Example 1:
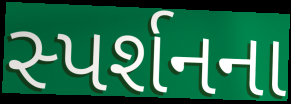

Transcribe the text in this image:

સ્પર્શનના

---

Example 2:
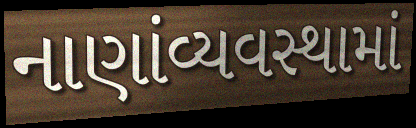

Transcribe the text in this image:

નાણાંવ્યવસ્થામાં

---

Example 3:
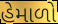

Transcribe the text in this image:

હેમાળો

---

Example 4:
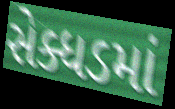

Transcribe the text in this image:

સેક્ધડમાં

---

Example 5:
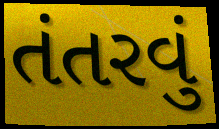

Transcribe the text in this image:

તંતરવું